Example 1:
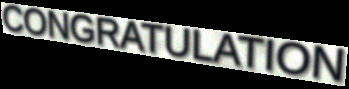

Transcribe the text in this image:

CONGRATULATION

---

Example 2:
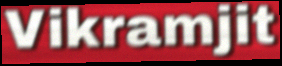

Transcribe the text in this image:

Vikramjit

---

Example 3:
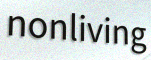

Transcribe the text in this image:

nonliving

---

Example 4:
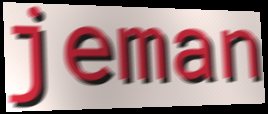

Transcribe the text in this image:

jeman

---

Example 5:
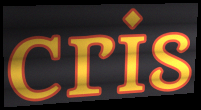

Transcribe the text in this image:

cris